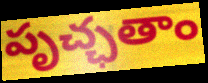
పృచ్ఛతాం